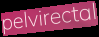
pelvirectal